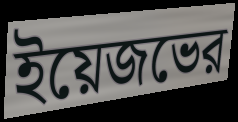
ইয়েজভের